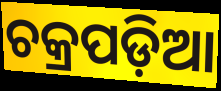
ଚକ୍ରପଡ଼ିଆ